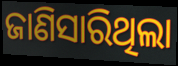
ଜାଣିସାରିଥିଲା